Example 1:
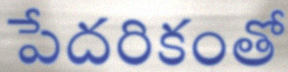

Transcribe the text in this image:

పేదరికంతో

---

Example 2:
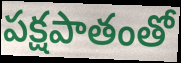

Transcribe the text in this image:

పక్షపాతంతో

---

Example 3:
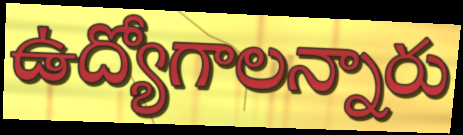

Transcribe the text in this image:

ఉద్యోగాలన్నారు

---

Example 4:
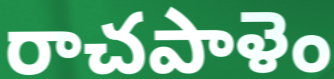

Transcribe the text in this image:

రాచపాళెం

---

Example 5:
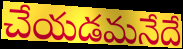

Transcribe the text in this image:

చేయడమనేదే